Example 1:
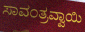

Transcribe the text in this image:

ಸಾವಂತ್ರವ್ವಾಯಿ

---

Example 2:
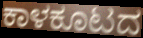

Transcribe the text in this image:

ಕಾಳಕೂಟದ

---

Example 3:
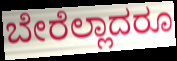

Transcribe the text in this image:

ಬೇರೆಲ್ಲಾದರೂ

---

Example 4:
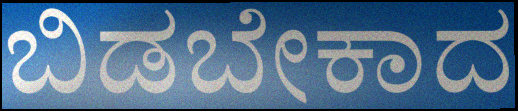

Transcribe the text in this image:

ಬಿಡಬೇಕಾದ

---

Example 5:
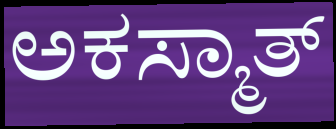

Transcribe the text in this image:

ಅಕಸ್ಮಾತ್